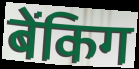
बेंकिग